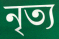
নৃত্য